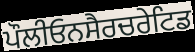
ਪੌਲੀਓਨਸੈਰਚਰੇਟਿਡ